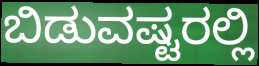
ಬಿಡುವಷ್ಟರಲ್ಲಿ